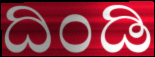
ದಿಂಡಿ